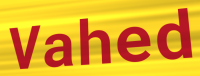
Vahed